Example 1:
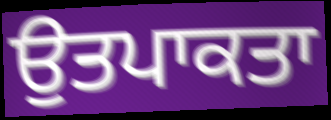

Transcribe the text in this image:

ਉਤਪਾਕਤਾ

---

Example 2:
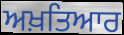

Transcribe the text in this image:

ਅਖ਼ਤਿਆਰ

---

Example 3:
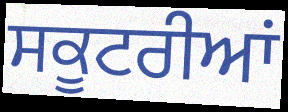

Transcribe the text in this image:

ਸਕੂਟਰੀਆਂ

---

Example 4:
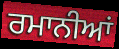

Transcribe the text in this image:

ਰਮਾਨੀਆਂ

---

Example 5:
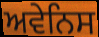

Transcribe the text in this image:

ਅਵੇਨਿਸ